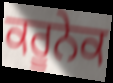
ਕਰੂਨੇਕ